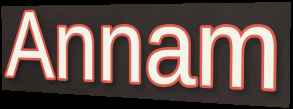
Annam